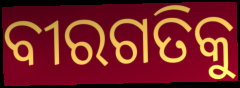
ବୀରଗତିକୁ